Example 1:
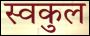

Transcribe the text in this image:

स्वकुल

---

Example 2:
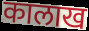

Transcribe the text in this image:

कालाख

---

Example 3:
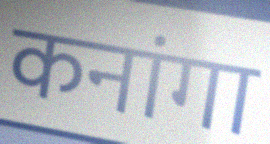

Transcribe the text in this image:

कनांगा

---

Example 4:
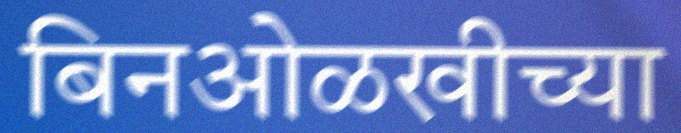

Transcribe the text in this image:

बिनओळखीच्या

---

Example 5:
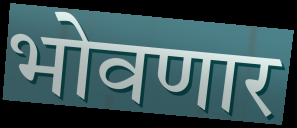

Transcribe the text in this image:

भोवणार